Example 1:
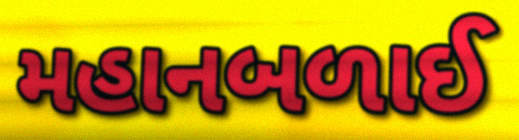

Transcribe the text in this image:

મહાનબળાઈ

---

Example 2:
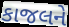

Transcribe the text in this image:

કાજલને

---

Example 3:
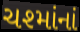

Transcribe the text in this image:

ચશ્માંનાં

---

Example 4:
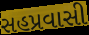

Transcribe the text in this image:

સહપ્રવાસી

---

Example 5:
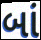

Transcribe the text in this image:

બાં